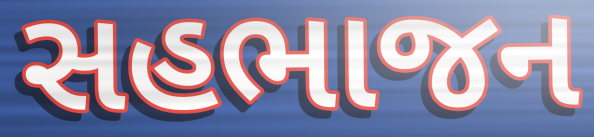
સહભાજન